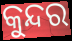
କୁନ୍ଦର